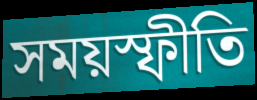
সময়স্ফীতি